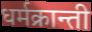
धर्मक्रान्ती